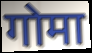
गोमा